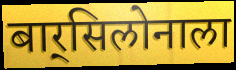
बार्सिलोनाला